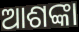
ଆଶଙ୍କା